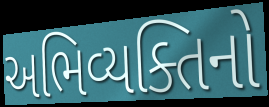
અભિવ્યક્તિનો